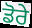
ਡੋਰੇ